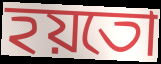
হয়তো